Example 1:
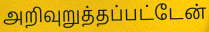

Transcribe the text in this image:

அறிவுறுத்தப்பட்டேன்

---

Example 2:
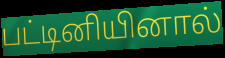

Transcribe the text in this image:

பட்டினியினால்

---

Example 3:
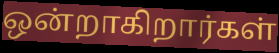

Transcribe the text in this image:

ஒன்றாகிறார்கள்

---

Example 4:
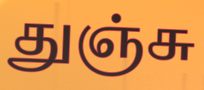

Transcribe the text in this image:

துஞ்சு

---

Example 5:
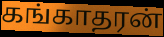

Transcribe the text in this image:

கங்காதரன்